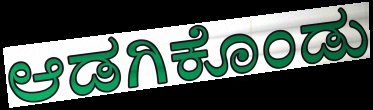
ಆಡಗಿಕೊಂಡು